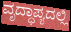
ವೃದ್ಧಾಪ್ಯದಲ್ಲಿ